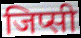
जिप्सी